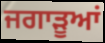
ਜਗਾੜੂਆਂ